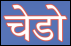
चेडो